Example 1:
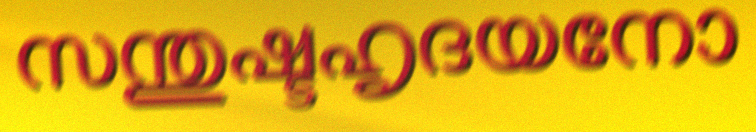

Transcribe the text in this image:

സന്തുഷ്ടഹൃദയനോ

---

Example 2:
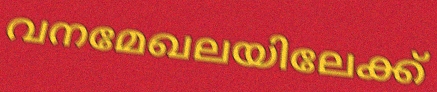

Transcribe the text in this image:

വനമേഖലയിലേക്ക്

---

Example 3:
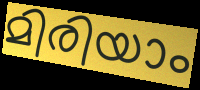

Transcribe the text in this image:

മിരിയാം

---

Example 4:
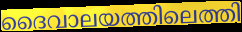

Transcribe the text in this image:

ദൈവാലയത്തിലെത്തി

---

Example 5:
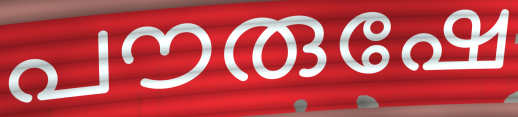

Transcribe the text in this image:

പൗരുഷേ